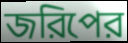
জরিপের